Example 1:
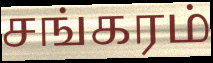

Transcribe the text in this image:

சங்கரம்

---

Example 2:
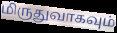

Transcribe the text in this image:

மிருதுவாகவும்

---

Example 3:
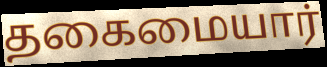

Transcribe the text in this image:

தகைமையார்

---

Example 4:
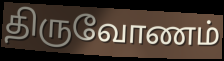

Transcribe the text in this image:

திருவோணம்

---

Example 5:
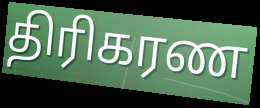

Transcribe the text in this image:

திரிகரண